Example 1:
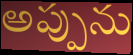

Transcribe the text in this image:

అప్పును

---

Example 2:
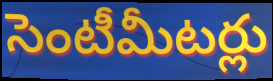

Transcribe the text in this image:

సెంటీమీటర్లు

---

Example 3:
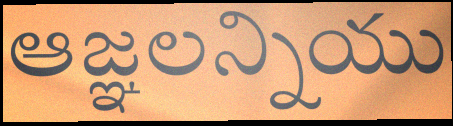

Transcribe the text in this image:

ఆజ్ఞలన్నియు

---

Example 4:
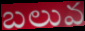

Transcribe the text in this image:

బలువ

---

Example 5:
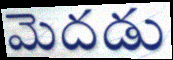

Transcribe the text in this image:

మెదడు